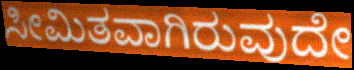
ಸೀಮಿತವಾಗಿರುವುದೇ